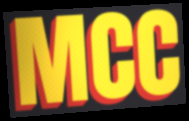
MCC